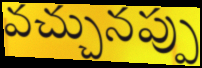
వచ్చునప్పు